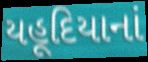
યહૂદિયાનાં